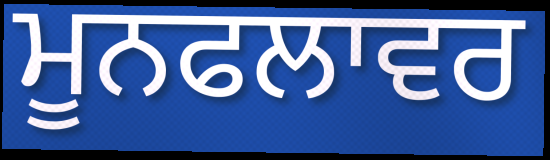
ਮੂਨਫਲਾਵਰ